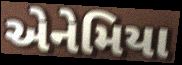
એનેમિયા